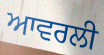
ਆਵਰਲੀ